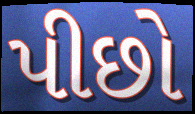
પીછો